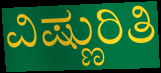
ವಿಷ್ಣುರಿತಿ